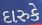
દારુકે